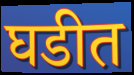
घडीत